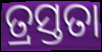
ତ୍ରସ୍ତତା